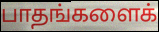
பாதங்களைக்